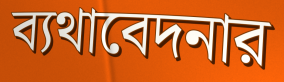
ব্যথাবেদনার